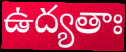
ఉద్యతాః